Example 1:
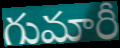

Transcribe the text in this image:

గుమారీ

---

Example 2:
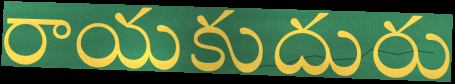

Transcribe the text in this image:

రాయకుదురు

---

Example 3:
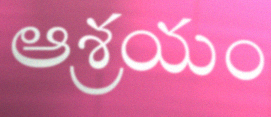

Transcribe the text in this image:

ఆశ్రయం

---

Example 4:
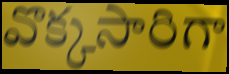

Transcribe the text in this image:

వొక్కసారిగా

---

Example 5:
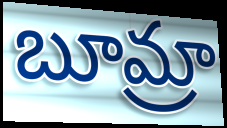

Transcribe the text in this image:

బూమ్రా